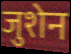
जुशेन